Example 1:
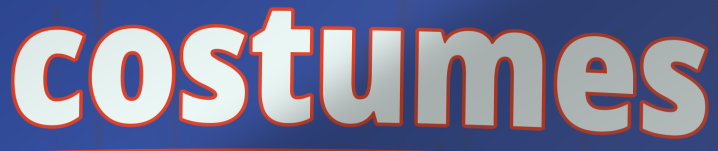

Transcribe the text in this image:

costumes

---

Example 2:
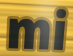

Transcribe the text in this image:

mi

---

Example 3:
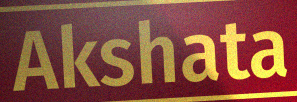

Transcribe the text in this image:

Akshata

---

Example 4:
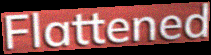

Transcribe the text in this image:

Flattened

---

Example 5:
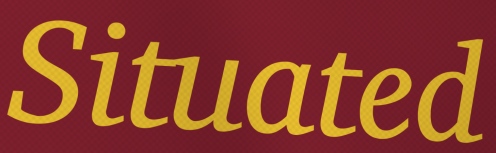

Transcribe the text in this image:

Situated